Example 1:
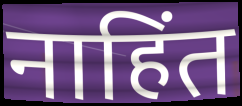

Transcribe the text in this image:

नाहिंत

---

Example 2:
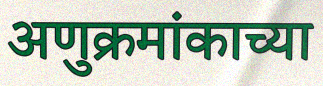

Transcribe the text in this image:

अणुक्रमांकाच्या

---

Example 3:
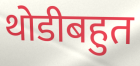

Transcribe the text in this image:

थोडीबहुत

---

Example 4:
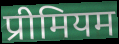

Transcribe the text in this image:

प्रीमियम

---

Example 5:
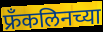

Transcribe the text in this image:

फ्रँकलिनच्या